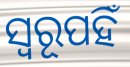
ସ୍ୱରୂପହିଁ